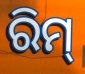
ରିମ୍